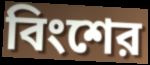
বিংশের